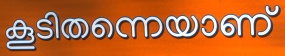
കൂടിതന്നെയാണ്